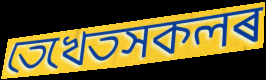
তেখেতসকলৰ